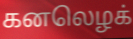
கனலெழக்